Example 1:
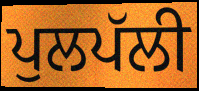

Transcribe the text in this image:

ਪੁਲਪੱਲੀ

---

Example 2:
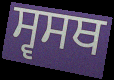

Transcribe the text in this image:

ਸ੍ਵਸਥ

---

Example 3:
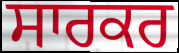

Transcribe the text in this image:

ਸਾਰਕਰ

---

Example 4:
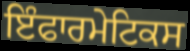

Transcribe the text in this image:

ਇੰਫਾਰਮੇਟਿਕਸ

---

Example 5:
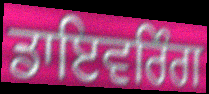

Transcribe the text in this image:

ਡਾਇਵਰਿੰਗ